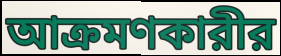
আক্রমণকারীর